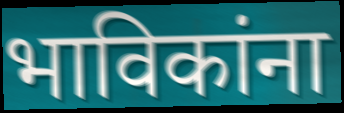
भाविकांना